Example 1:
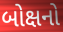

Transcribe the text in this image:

બોક્ષનો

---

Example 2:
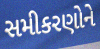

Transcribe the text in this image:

સમીકરણોને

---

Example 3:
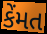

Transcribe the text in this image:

કેંમત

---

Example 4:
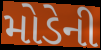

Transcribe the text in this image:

મોડેની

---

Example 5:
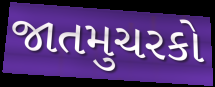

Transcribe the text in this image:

જાતમુચરકો